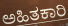
ಅಹಿತಕಾರಿ